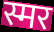
स्मर